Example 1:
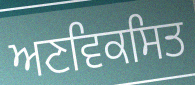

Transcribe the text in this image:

ਅਣਵਿਕਸਿਤ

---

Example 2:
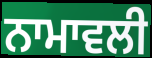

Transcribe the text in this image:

ਨਾਮਾਵਲੀ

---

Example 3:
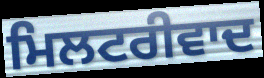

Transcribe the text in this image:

ਮਿਲਟਰੀਵਾਦ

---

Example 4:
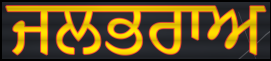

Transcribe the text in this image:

ਜਲਭਰਾਅ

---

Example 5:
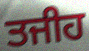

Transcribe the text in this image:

ਤਜੀਹ